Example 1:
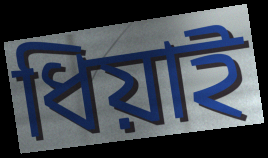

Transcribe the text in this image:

ধিয়াই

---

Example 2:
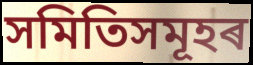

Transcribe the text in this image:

সমিতিসমূহৰ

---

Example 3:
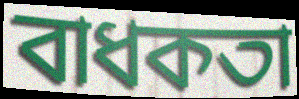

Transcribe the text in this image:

বাধকতা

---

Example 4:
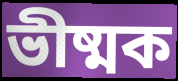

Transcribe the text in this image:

ভীষ্মক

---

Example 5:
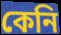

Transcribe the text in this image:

কেনি